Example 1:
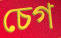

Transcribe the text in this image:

চেগ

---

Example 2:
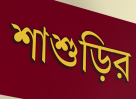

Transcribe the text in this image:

শাশুড়ির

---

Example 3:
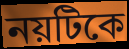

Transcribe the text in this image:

নয়টিকে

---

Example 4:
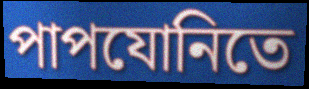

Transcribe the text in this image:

পাপযোনিতে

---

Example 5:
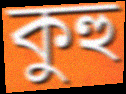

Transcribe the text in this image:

কুহু